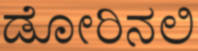
ಡೋರಿನಲಿ